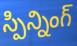
స్పిన్నింగ్